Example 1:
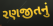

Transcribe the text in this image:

રણજીતનું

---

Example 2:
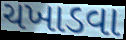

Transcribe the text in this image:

ચખાડવા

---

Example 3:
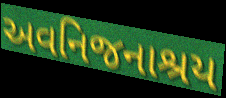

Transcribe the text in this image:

અવનિજનાશ્રય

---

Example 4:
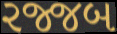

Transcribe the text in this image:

રજ્જબ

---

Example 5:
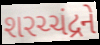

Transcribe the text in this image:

શરચ્ચંદ્રને